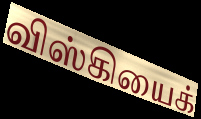
விஸ்கியைக்